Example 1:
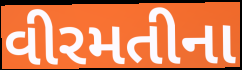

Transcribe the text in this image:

વીરમતીના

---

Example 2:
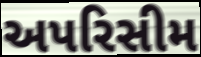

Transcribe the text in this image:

અપરિસીમ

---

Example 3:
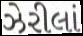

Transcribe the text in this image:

ઝેરીલાં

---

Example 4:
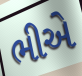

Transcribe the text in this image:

ભીએ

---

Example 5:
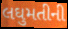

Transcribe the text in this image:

લઘુમતીની